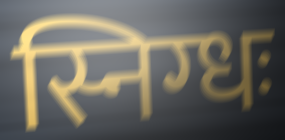
स्निग्धः